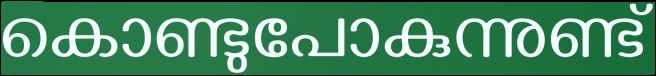
കൊണ്ടുപോകുന്നുണ്ട്